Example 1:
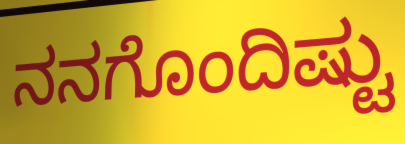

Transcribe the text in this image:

ನನಗೊಂದಿಷ್ಟು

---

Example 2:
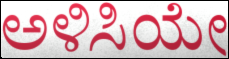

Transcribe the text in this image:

ಅಳಿಸಿಯೇ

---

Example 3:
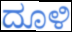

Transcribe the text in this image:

ದೂಳಿ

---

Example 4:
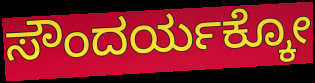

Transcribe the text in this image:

ಸೌಂದರ್ಯಕ್ಕೋ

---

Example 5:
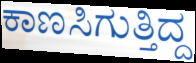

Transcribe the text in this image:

ಕಾಣಸಿಗುತ್ತಿದ್ದ